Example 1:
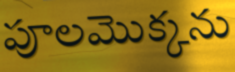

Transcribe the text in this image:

పూలమొక్కను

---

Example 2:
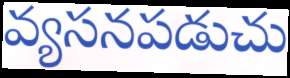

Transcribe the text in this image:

వ్యసనపడుచు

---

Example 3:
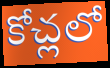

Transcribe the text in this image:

కోచ్లలో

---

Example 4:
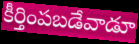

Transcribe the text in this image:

కీర్తింపబడేవాడూ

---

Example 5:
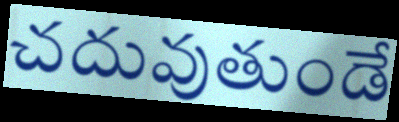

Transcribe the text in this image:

చదువుతుండే